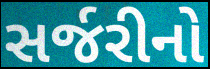
સર્જરીનો